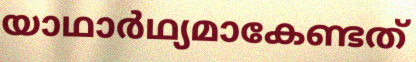
യാഥാർഥ്യമാകേണ്ടത്